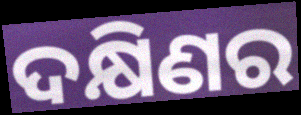
ଦକ୍ଷିଣର